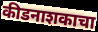
कीडनाशकाचा